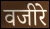
वजीरे